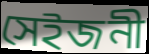
সেইজনী